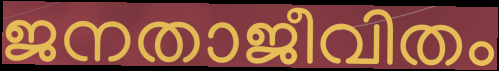
ജനതാജീവിതം